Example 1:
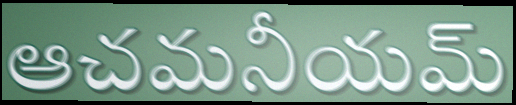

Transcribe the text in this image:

ఆచమనీయమ్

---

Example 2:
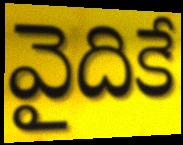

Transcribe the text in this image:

వైదికే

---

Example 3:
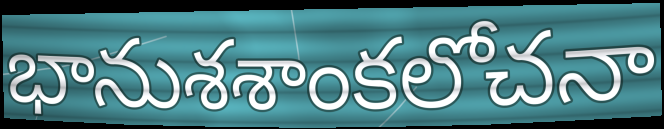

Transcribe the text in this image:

భానుశశాంకలోచనా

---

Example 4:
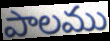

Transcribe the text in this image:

పాలము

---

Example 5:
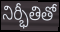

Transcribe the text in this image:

నిర్భీతితో